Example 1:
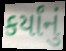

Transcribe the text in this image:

કર્યાંનું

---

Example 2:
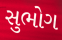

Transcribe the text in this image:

સુભોગ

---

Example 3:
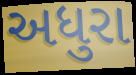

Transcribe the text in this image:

અધુરા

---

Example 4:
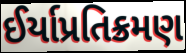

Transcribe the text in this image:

ઈર્યાપ્રતિક્રમણ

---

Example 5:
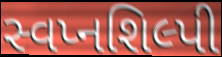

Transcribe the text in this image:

સ્વપ્નશિલ્પી